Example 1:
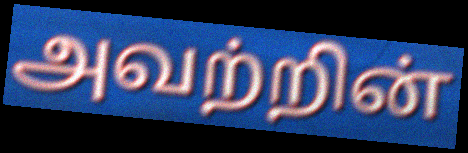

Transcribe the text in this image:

அவற்றின்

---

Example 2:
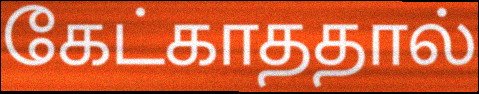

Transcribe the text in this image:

கேட்காததால்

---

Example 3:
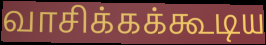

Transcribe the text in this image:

வாசிக்கக்கூடிய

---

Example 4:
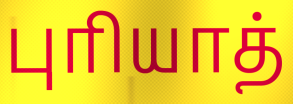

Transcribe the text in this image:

புரியாத்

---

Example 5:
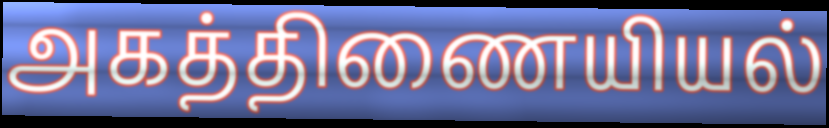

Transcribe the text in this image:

அகத்திணையியல்